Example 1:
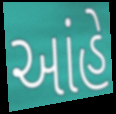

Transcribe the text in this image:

આંહે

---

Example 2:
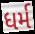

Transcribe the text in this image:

ધર્મ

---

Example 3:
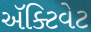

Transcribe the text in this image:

ઍક્ટિવેટ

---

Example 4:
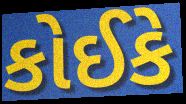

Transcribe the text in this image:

કોઈકે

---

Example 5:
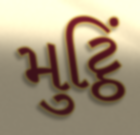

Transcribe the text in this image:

મુટ્ઠિં